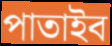
পাতাইব